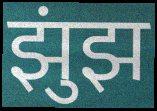
झुंझ